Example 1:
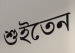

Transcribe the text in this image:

শুইতেন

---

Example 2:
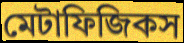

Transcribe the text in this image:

মেটাফিজিকস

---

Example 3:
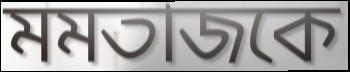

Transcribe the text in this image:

মমতাজকে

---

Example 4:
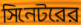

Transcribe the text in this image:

সিনেটরের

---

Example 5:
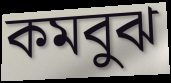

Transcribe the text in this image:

কমবুঝ